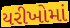
યરીખોમાં